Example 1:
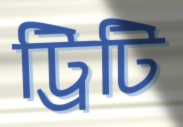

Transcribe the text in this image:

ট্রিটি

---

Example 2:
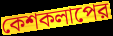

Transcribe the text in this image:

কেশকলাপের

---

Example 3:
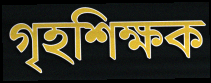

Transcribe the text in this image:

গৃহশিক্ষক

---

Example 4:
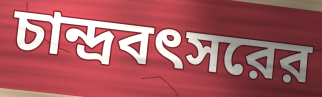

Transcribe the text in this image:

চান্দ্রবৎসরের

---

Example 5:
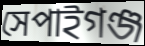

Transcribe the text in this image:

সেপাইগঞ্জ